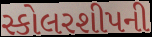
સ્કોલરશીપની